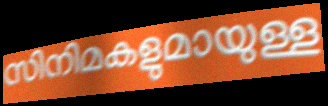
സിനിമകളുമായുള്ള